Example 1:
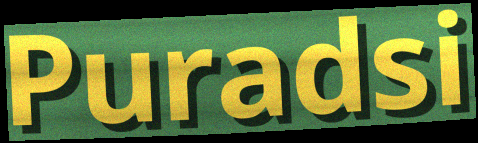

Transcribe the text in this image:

Puradsi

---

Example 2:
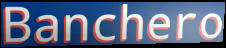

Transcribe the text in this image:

Banchero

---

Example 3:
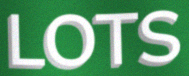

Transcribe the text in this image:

LOTS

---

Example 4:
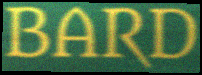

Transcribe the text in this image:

BARD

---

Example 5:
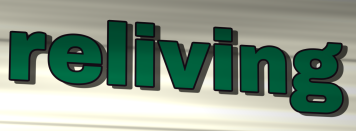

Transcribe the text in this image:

reliving